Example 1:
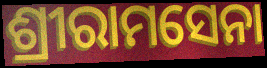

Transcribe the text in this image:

ଶ୍ରୀରାମସେନା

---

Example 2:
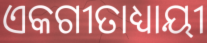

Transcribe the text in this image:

ଏକଗୀତାଧ୍ୟାୟୀ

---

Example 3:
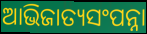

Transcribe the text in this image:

ଆଭିଜାତ୍ୟସଂପନ୍ନା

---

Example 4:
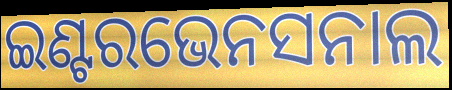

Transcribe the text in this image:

ଇଣ୍ଟରଭେନସନାଲ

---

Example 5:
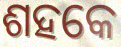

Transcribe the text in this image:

ଶହକେ